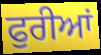
ਫੁਰੀਆਂ